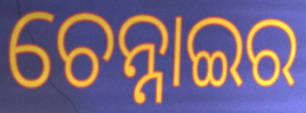
ଚେନ୍ନାଇର